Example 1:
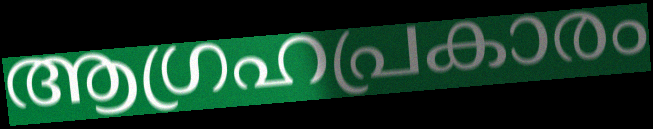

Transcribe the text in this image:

ആഗ്രഹപ്രകാരം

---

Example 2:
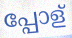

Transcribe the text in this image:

പ്പോള്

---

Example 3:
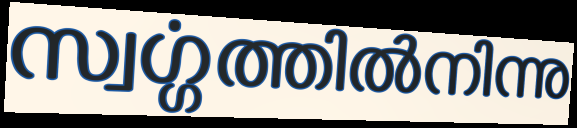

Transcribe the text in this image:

സ്വൎഗ്ഗത്തിൽനിന്നു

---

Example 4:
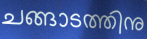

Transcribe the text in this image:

ചങ്ങാടത്തിനു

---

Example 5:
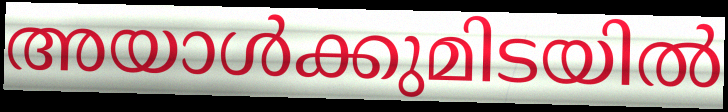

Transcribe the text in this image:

അയാൾക്കുമിടയിൽ